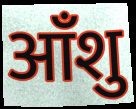
आँशु